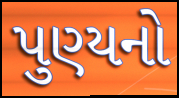
પુણ્યનો